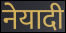
नेयादी